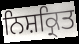
ਨਿਸ਼ਕ੍ਰਿਤ